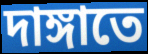
দাঙ্গাতে